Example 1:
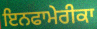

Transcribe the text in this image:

ਇਨਫਾਮੇਰੀਕਾ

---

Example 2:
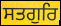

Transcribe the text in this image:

ਸਤਗੁਰਿ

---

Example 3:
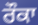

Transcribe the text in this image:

ਰੌਕਾ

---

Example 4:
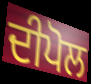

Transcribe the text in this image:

ਦੀਪੋਲ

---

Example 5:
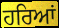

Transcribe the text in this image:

ਹਰਿਆਂ